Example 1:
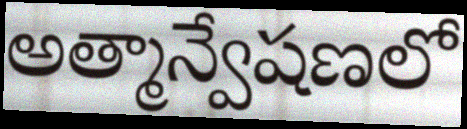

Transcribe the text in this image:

అత్మాన్వేషణలో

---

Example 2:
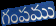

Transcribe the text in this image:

గంపము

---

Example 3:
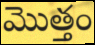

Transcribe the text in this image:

మొత్తం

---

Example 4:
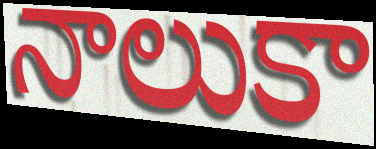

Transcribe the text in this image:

నాలుకా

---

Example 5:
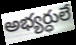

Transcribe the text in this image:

అభ్యర్ధులే